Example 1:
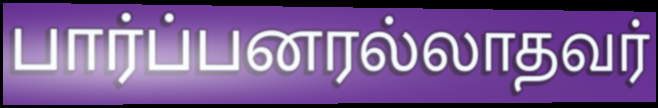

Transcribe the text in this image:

பார்ப்பனரல்லாதவர்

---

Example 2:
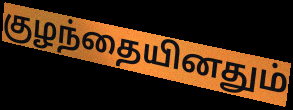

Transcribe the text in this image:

குழந்தையினதும்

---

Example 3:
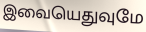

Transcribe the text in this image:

இவையெதுவுமே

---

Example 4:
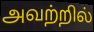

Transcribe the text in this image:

அவற்றில்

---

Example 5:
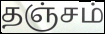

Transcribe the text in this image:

தஞ்சம்